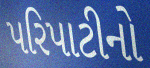
પરિપાટીનો